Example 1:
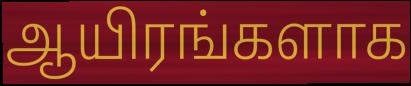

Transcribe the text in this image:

ஆயிரங்களாக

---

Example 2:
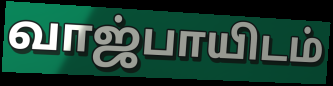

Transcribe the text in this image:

வாஜ்பாயிடம்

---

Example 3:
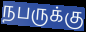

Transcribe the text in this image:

நபருக்கு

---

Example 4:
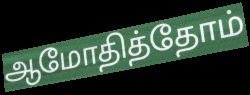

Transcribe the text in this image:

ஆமோதித்தோம்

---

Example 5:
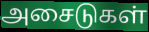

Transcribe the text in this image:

அசைடுகள்